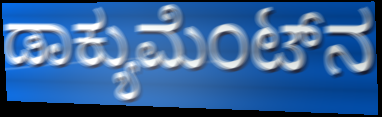
ಡಾಕ್ಯುಮೆಂಟ್‌ನ